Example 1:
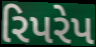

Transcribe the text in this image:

રિપરેપ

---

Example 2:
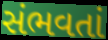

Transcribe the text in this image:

સંભવતાં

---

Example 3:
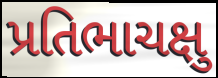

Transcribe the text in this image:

પ્રતિભાચક્ષુ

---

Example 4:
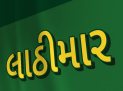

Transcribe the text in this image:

લાઠીમાર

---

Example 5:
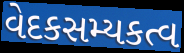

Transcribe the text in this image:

વેદકસમ્યકત્વ